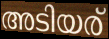
അടിയര്